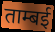
ताम्बई